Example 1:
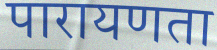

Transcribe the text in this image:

पारायणता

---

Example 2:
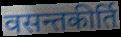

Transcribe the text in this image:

वसन्तकीर्ति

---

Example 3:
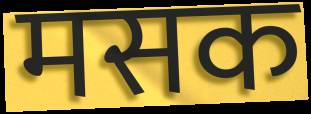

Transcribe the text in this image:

मसक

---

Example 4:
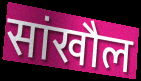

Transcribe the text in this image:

सांखौल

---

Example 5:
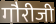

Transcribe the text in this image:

गौरीजी